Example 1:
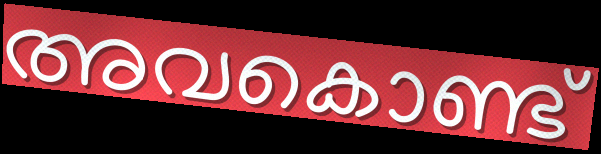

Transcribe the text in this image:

അവകൊണ്ട്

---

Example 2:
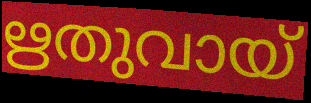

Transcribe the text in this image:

ഋതുവായ്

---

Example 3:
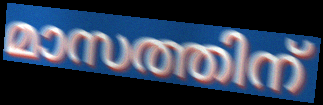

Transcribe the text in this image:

മാസത്തിന്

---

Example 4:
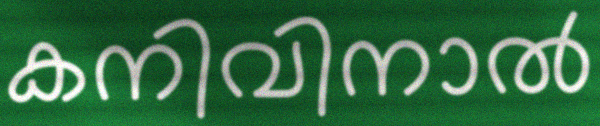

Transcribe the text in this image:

കനിവിനാൽ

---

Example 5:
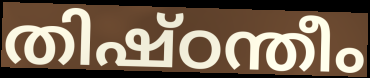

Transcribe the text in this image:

തിഷ്ഠന്തീം